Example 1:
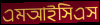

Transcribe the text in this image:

এমআইসিএস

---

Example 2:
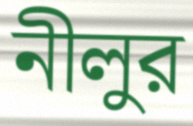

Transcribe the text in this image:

নীলুর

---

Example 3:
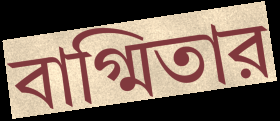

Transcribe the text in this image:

বাগ্মিতার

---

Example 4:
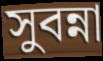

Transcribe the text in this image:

সুবন্না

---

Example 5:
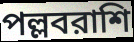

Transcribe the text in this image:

পল্লবরাশি